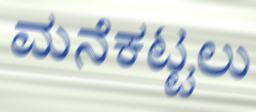
ಮನೆಕಟ್ಟಲು